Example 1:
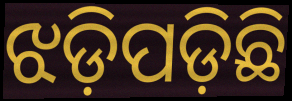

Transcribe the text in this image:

ଝଡ଼ିପଡ଼ିଛି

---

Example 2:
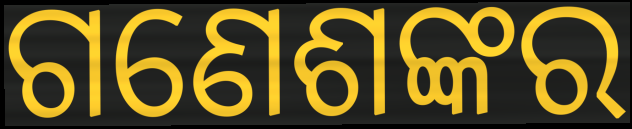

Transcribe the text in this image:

ଗଣେଶଙ୍କର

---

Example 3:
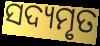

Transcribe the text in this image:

ସଦ୍ୟମୃତ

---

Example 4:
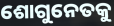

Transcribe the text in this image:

ଶୋଗୁନେତକୁ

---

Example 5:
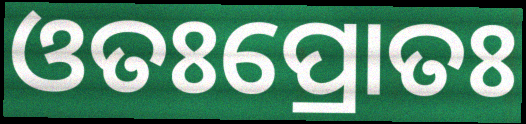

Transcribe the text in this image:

ଓତଃପ୍ରୋତଃ